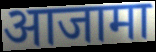
आजामा